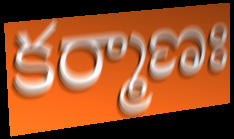
కర్మాణః